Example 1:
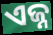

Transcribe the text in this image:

ଏଜ୍ନ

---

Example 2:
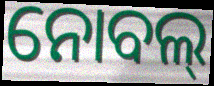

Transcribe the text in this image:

ନୋବଲ୍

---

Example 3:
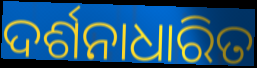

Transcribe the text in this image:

ଦର୍ଶନାଧାରିତ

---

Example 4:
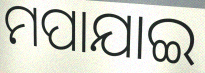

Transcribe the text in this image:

ମପାଯାଇ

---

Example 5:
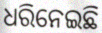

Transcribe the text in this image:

ଧରିନେଇଛି